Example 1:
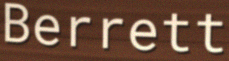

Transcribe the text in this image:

Berrett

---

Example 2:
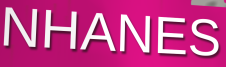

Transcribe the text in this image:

NHANES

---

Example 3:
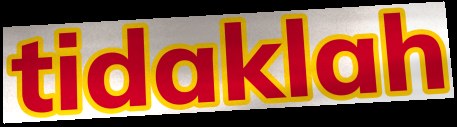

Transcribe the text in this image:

tidaklah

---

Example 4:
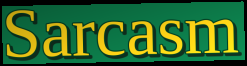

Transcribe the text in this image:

Sarcasm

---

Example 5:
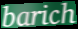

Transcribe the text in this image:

barich